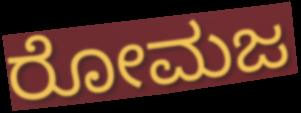
ರೋಮಜ